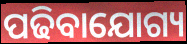
ପଢିବାଯୋଗ୍ୟ